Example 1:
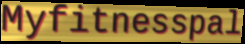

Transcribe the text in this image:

Myfitnesspal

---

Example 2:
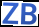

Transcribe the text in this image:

ZB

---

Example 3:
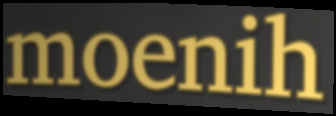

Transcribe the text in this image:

moenih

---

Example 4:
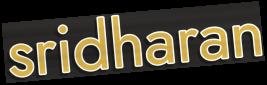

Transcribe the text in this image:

sridharan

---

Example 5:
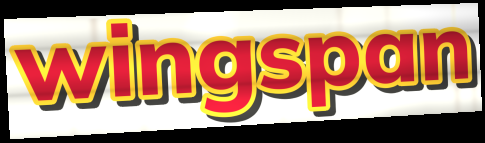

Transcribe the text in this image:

wingspan